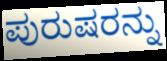
ಪುರುಷರನ್ನು